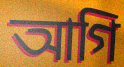
আগি